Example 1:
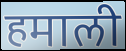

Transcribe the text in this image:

हमाली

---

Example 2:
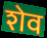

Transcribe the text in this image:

शेव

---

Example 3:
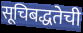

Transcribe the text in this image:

सूचिबद्धतेची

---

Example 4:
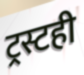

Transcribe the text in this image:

ट्रस्टही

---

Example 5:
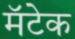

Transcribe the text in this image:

मॅटेक